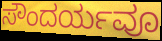
ಸೌಂದರ್ಯವೂ